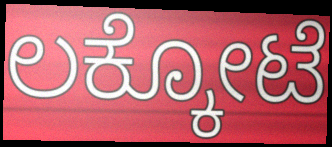
ಲಕ್ಕೋಟೆ